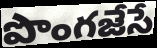
పొంగజేసే